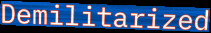
Demilitarized